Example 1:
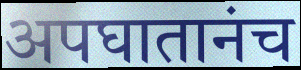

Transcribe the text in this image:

अपघातानंच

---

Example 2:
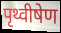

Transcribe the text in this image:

पृथ्वीषेण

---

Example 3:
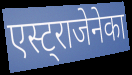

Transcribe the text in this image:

एस्ट्राजेनेका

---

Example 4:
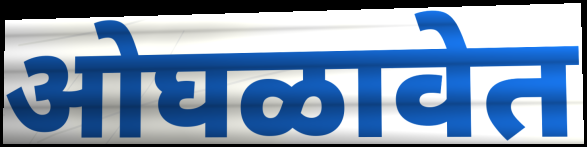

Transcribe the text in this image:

ओघळावेत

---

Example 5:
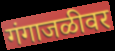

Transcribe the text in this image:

गंगाजळीवर